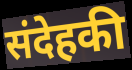
संदेहकी